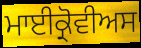
ਮਾਈਕ੍ਰੋਵੀਅਸ